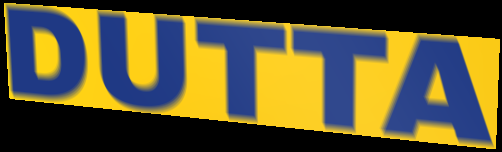
DUTTA